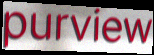
purview